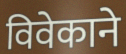
विवेकाने